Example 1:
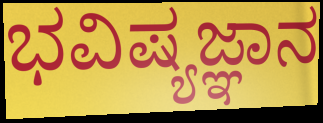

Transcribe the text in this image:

ಭವಿಷ್ಯಜ್ಞಾನ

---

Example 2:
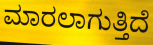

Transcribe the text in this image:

ಮಾರಲಾಗುತ್ತಿದೆ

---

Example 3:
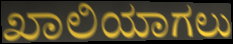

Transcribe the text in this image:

ಖಾಲಿಯಾಗಲು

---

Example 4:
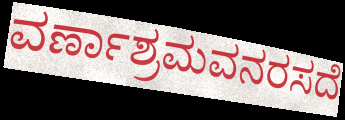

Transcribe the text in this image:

ವರ್ಣಾಶ್ರಮವನರಸದೆ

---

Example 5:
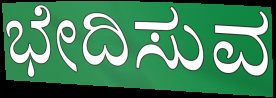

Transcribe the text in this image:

ಭೇದಿಸುವ